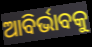
ଆବିର୍ଭାବକୁ